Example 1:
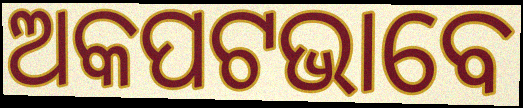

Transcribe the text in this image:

ଅକପଟଭାବେ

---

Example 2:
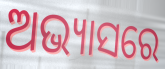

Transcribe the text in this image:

ଅଭ୍ୟାସରେ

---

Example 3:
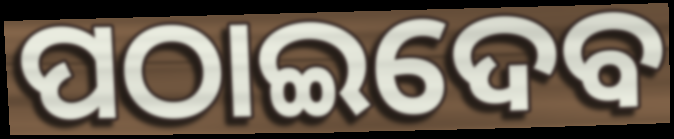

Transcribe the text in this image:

ପଠାଇଦେବ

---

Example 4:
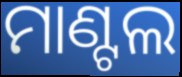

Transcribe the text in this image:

ମାଣ୍ଟଲ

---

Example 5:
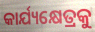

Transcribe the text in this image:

କାର୍ଯ୍ୟକ୍ଷେତ୍ରକୁ